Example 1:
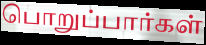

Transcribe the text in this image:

பொறுப்பார்கள்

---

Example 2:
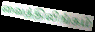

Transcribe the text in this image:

வைத்திலிங்கம்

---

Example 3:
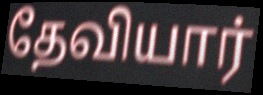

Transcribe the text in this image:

தேவியார்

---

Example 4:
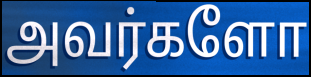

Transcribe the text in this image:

அவர்களோ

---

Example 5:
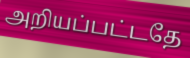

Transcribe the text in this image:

அறியப்பட்டதே